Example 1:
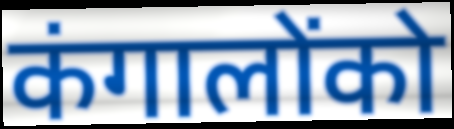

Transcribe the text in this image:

कंगालोंको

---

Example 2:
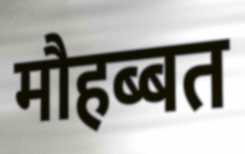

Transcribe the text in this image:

मौहब्बत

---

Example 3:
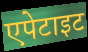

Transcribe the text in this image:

एपेटाइट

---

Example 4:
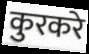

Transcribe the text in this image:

कुरकरे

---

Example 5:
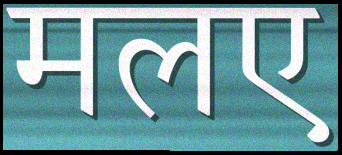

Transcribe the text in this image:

मलए